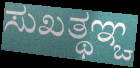
ಸುಖತ್ಥಞ್ಚ